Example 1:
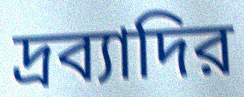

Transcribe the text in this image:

দ্রব্যাদির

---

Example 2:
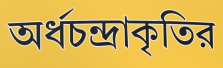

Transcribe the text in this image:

অর্ধচন্দ্রাকৃতির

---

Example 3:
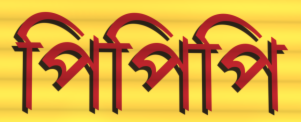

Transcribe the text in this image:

পিপিপি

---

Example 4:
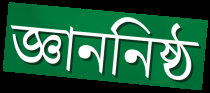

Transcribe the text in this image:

জ্ঞাননিষ্ঠ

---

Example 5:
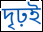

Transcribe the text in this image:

দৃঢ়ই